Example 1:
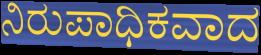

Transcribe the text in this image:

ನಿರುಪಾಧಿಕವಾದ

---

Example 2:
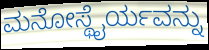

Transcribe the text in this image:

ಮನೋಸ್ಥೈರ್ಯವನ್ನು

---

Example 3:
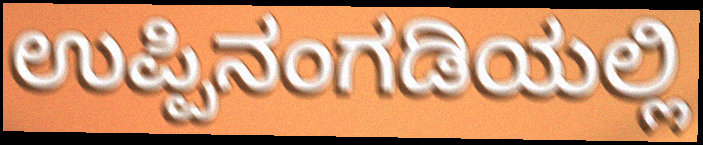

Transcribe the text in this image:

ಉಪ್ಪಿನಂಗಡಿಯಲ್ಲಿ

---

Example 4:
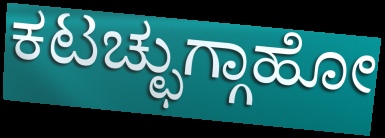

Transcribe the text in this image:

ಕಟಚ್ಛುಗ್ಗಾಹೋ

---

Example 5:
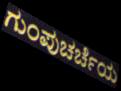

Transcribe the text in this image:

ಗುಂಪುಚರ್ಚೆಯ